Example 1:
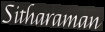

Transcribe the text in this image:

Sitharaman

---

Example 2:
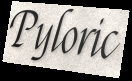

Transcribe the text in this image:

Pyloric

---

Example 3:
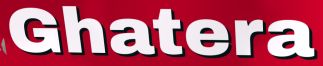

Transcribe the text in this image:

Ghatera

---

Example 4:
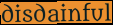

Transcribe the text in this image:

disdainful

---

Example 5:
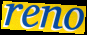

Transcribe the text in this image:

reno